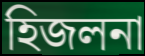
হিজলনা